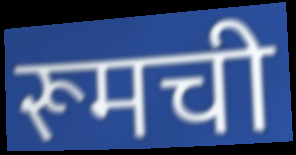
रूमची